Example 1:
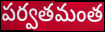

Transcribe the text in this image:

పర్వతమంత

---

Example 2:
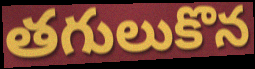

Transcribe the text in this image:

తగులుకొన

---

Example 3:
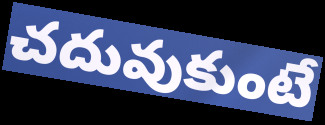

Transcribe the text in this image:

చదువుకుంటే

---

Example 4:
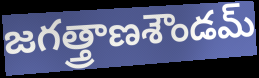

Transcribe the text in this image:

జగత్త్రాణశౌండమ్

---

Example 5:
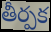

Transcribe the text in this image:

తీర్పక